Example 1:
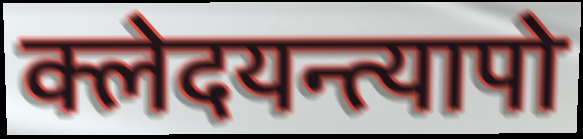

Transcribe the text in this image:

क्लेदयन्त्यापो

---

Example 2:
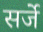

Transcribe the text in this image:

सर्जे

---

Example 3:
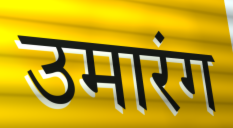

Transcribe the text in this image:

उमारंग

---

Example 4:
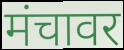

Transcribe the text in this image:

मंचावर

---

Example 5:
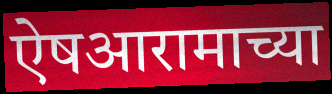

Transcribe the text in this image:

ऐषआरामाच्या